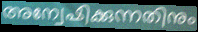
അന്വേഷിക്കുന്നതിനും